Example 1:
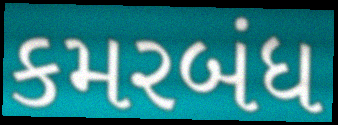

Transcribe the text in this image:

કમરબંધ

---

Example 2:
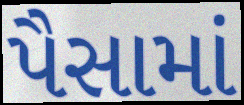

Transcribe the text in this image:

પૈસામાં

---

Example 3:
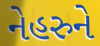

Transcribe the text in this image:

નેહરુને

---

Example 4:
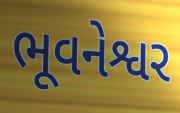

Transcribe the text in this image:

ભૂવનેશ્વર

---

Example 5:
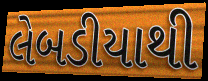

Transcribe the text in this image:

લેબડીયાથી